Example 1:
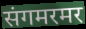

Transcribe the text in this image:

संगमरमर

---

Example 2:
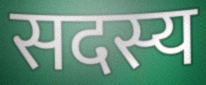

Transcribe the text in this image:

सदस्‍य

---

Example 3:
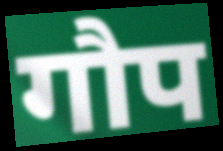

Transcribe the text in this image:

गौप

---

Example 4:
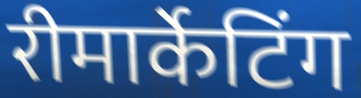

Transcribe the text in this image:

रीमार्केटिंग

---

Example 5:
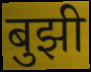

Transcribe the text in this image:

बुझी